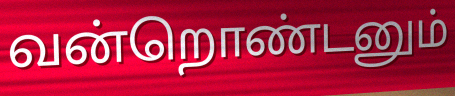
வன்றொண்டனும்